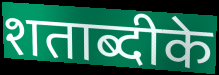
शताब्दीके